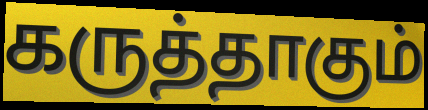
கருத்தாகும்